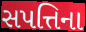
સપત્તિના